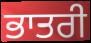
ਭਾਤਰੀ